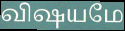
விஷயமே